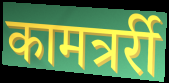
कामत्रर्री